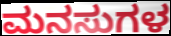
ಮನಸುಗಳ